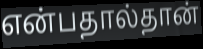
என்பதால்தான்